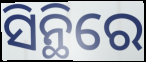
ସିନ୍ଥିରେ